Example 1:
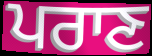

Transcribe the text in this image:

ਪਰਾਣ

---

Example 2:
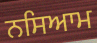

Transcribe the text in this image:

ਨਸਿਆਮ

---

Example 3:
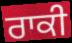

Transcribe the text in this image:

ਰਾਕੀ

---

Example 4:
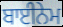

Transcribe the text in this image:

ਬਾਈਨੇਮ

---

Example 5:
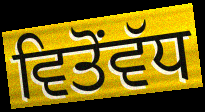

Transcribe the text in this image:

ਵਿਤੋਂਵੱਧ